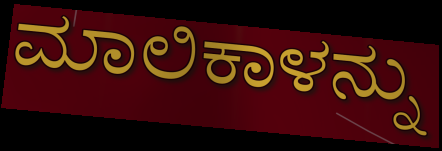
ಮಾಲಿಕಾಳನ್ನು